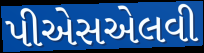
પીએસએલવી